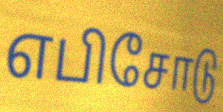
எபிசோடு